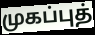
முகப்புத்